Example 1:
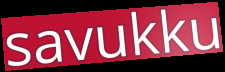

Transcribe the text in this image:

savukku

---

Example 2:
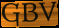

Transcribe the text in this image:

GBV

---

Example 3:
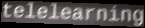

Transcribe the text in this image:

telelearning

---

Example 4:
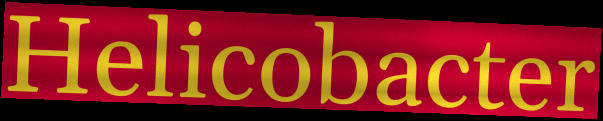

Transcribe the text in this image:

Helicobacter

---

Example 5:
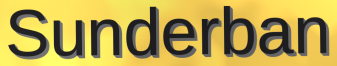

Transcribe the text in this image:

Sunderban